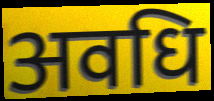
अवधि